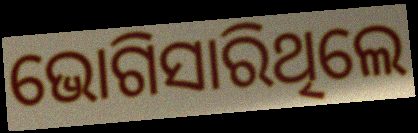
ଭୋଗିସାରିଥିଲେ